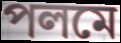
পলমে